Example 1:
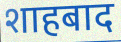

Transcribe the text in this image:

शाहबाद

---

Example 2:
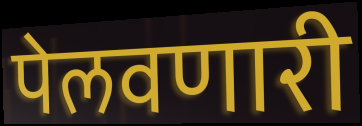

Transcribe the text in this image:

पेलवणारी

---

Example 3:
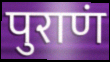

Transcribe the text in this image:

पुराणं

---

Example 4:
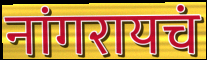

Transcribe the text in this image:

नांगरायचं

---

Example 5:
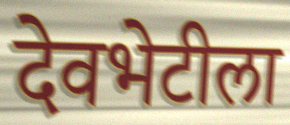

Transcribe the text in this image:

देवभेटीला